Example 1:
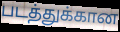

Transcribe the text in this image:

படத்துக்கான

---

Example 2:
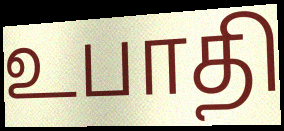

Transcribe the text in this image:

உபாதி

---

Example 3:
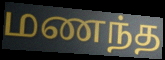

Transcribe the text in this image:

மணந்த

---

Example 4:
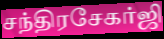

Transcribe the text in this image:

சந்திரசேகர்ஜி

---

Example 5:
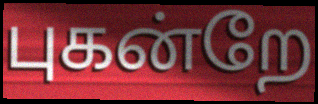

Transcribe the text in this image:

புகன்றே